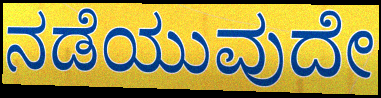
ನಡೆಯುವುದೇ